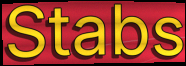
Stabs